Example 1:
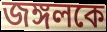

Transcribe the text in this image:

জঙ্গলকে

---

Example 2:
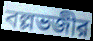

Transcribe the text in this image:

বল্লভজীর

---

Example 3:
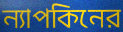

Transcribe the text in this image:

ন্যাপকিনের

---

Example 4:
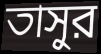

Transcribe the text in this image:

তাসুর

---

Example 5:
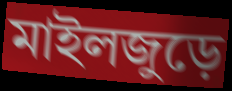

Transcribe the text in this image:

মাইলজুড়ে